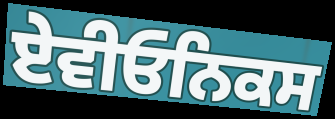
ਏਵੀਓਨਿਕਸ